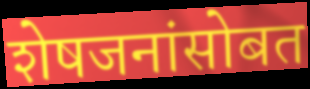
शेषजनांसोबत